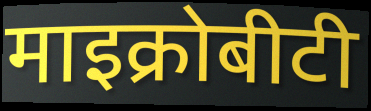
माइक्रोबीटी